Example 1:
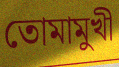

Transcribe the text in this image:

তোমামুখী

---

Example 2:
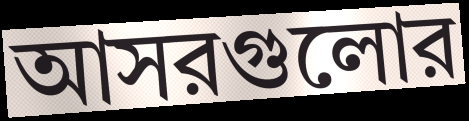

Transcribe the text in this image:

আসরগুলোর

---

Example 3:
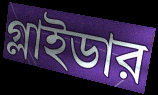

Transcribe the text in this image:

গ্লাইডার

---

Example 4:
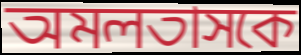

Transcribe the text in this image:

অমলতাসকে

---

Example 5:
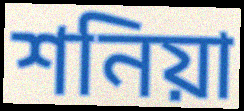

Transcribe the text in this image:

শনিয়া